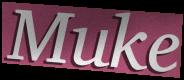
Muke